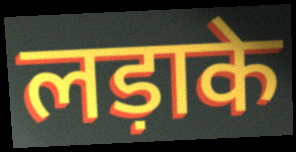
लड़ाके